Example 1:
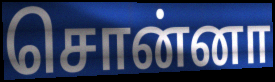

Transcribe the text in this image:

சொன்னா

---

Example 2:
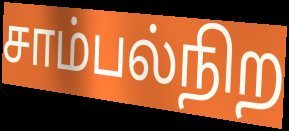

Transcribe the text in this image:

சாம்பல்நிற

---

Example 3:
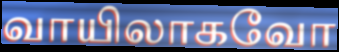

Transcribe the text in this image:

வாயிலாகவோ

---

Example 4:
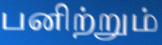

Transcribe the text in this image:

பனிற்றும்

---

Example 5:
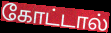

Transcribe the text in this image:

கோட்டால்